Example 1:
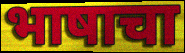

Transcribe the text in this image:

भाषाचा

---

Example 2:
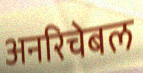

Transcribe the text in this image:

अनरिचेबल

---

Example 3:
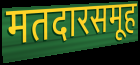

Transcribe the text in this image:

मतदारसमूह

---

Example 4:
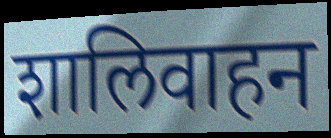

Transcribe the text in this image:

शालिवाहन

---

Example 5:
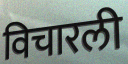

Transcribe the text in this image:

विचारली